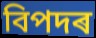
বিপদৰ